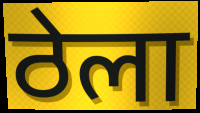
ठेला